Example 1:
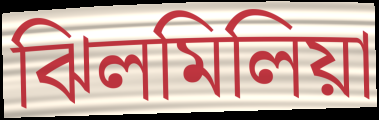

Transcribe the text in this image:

ঝিলমিলিয়া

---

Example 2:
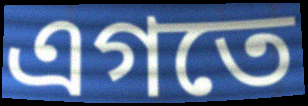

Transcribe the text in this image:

এগতে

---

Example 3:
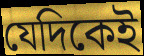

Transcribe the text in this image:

যেদিকেই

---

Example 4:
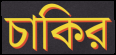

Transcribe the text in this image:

চাকির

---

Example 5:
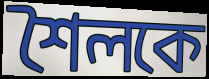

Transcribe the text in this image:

শৈলকে